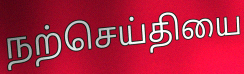
நற்செய்தியை